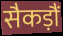
सैकड़ौं